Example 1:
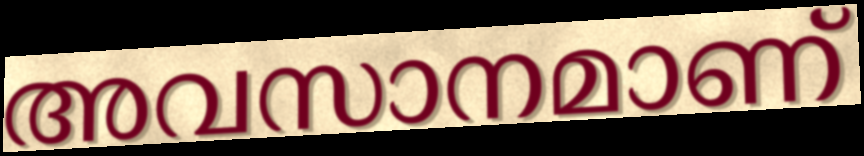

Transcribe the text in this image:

അവസാനമാണ്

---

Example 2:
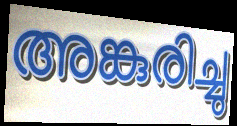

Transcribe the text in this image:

അങ്കുരിച്ചു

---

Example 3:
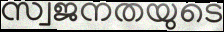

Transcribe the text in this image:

സ്വജനതയുടെ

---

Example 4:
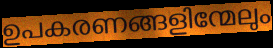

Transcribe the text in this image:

ഉപകരണങ്ങളിന്മേലും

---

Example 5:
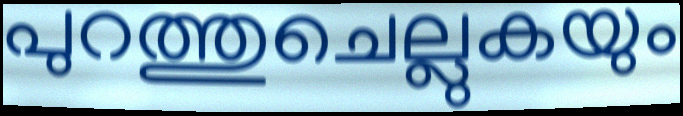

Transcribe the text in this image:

പുറത്തുചെല്ലുകയും